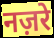
नज़रे